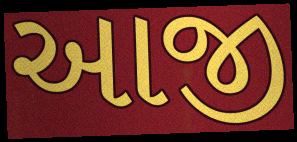
આજી